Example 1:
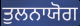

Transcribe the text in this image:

ਤੁਲਨਾਯੋਗ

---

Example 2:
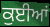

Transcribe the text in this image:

ਕੁਈਆਂ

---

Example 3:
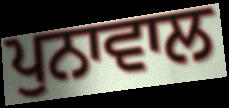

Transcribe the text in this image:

ਪੁਨਾਵਾਲ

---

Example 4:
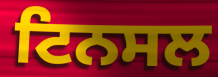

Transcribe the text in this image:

ਟਿਨਸਲ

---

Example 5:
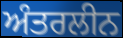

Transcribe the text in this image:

ਅੰਤਰਲੀਨ